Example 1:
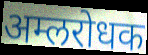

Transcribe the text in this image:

अम्लरोधक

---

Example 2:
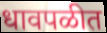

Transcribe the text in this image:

धावपळीत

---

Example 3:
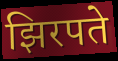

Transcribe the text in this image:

झिरपते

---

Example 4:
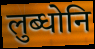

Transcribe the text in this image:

लुब्धोनि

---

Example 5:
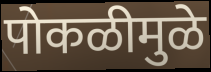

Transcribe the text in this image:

पोकळीमुळे